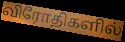
விரோதிகளில்